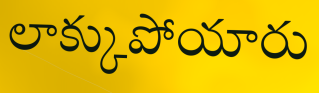
లాక్కుపోయారు